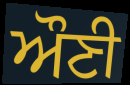
ਔਣੀ